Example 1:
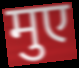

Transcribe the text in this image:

मुए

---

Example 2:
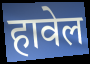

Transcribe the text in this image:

हावेल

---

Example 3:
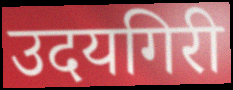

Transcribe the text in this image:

उदयगिरी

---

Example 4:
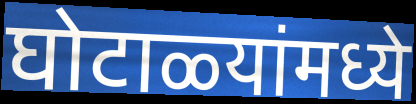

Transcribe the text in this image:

घोटाळ्यांमध्ये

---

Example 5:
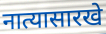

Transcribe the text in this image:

नात्यासारखे